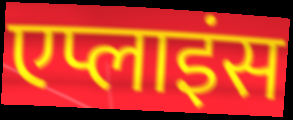
एप्लाइंस